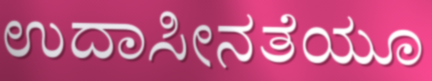
ಉದಾಸೀನತೆಯೂ